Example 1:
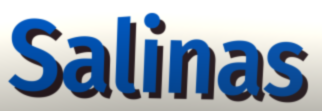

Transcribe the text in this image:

Salinas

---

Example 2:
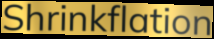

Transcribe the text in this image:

Shrinkflation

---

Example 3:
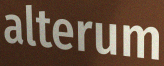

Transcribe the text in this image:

alterum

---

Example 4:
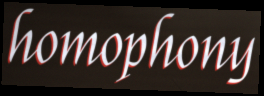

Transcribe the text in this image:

homophony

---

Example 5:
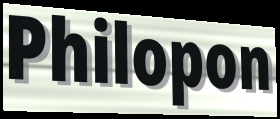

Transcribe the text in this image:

Philopon